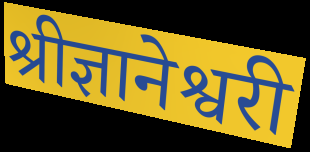
श्रीज्ञानेश्वरी